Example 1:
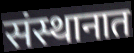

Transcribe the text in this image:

संस्थानात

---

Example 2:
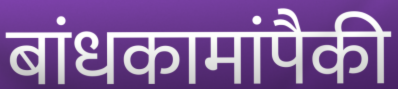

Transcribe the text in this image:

बांधकामांपैकी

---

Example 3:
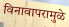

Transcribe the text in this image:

विनावापरामुळे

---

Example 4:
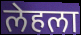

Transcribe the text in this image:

लेहला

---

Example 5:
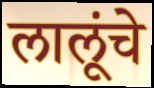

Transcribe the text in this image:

लालूंचे